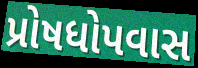
પ્રોષધોપવાસ